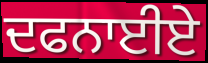
ਦਫਨਾਈਏ